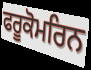
ਫਰੂਕੋਮਰਿਨ